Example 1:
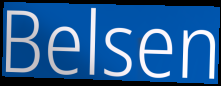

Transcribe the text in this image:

Belsen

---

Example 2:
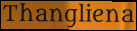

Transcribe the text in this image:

Thangliena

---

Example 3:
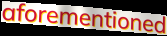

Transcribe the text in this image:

aforementioned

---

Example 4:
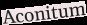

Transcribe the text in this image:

Aconitum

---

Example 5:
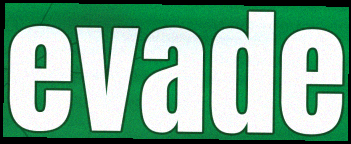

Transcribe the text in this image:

evade